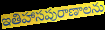
ఇతిహాసపురాణాలను